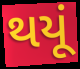
થયૂં